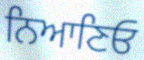
ਨਿਆਣਿਓ